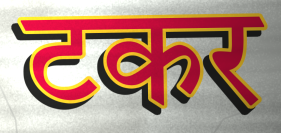
टकर